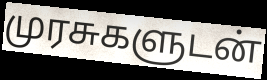
முரசுகளுடன்